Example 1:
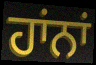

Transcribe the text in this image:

ਹਾਂਨਾਂ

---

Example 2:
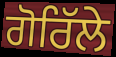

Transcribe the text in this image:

ਗੋਰਿੱਲੇ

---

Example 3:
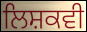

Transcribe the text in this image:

ਲਿਸ਼ਕਵੀ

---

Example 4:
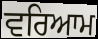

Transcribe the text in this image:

ਵਰਿਆਮ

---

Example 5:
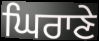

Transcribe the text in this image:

ਘਿਰਾਣੇ